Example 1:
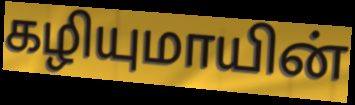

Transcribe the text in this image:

கழியுமாயின்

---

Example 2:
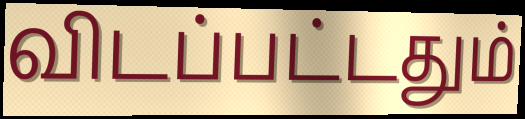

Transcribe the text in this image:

விடப்பட்டதும்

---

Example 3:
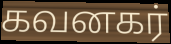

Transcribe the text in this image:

கவனகர்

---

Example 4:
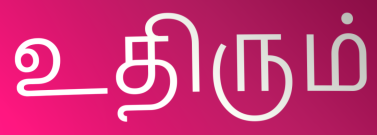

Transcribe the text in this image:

உதிரும்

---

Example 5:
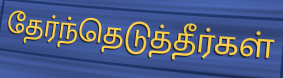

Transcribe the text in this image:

தேர்ந்தெடுத்தீர்கள்